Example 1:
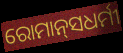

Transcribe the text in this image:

ରୋମାନ୍‌ସଧର୍ମୀ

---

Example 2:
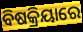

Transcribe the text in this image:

ବିଷକ୍ରିୟାରେ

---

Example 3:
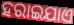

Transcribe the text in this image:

ହରାଇଯାଏ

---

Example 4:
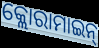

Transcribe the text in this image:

କ୍ଲୋରାମାଇନ୍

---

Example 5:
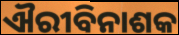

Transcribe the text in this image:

ଐରୀବିନାଶକ